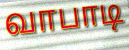
வாபாடி